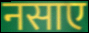
नसाए